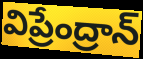
విప్రేంద్రాన్